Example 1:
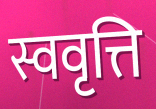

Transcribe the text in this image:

स्ववृत्ति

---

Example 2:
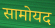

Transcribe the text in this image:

सामोयद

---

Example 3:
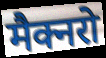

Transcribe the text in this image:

मैक्नरो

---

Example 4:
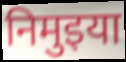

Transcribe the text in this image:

निमुइया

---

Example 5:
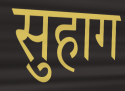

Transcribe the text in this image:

सुहाग